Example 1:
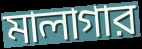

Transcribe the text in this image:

মালাগার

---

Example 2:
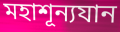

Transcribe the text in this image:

মহাশূন্যযান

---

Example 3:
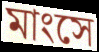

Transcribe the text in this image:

মাংসে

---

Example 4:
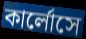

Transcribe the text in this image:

কার্লোসে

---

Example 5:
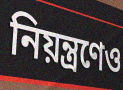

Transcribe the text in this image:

নিয়ন্ত্রণেও